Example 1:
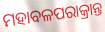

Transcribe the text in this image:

ମହାବଳପରାକ୍ରାନ୍ତ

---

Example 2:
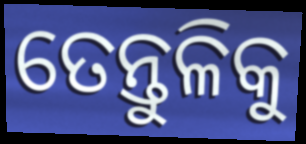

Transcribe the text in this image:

ତେନ୍ତୁଳିକୁ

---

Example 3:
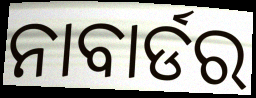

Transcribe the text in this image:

ନାବାର୍ଡର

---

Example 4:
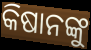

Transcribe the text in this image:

କିଷାନଙ୍କୁ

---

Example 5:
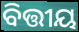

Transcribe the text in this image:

ବିତ୍ତୀୟ